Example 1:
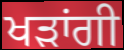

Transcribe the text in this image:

ਖੜਾਂਗੀ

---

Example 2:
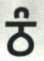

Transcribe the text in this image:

ਠੰ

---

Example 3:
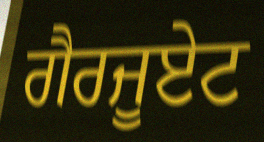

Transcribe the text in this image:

ਗੈਰਜੂਏਟ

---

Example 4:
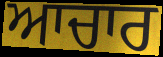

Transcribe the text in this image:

ਆਚਾਰ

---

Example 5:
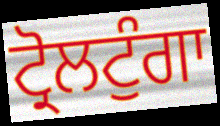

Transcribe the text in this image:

ਟ੍ਰੋਲਟੁੰਗਾ